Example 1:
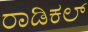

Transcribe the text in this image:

ರಾಡಿಕಲ್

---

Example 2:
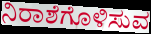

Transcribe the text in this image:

ನಿರಾಶೆಗೊಳಿಸುವ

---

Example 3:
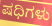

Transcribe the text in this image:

ಷಧಿಗಳು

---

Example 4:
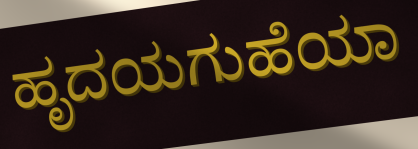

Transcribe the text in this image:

ಹೃದಯಗುಹೆಯಾ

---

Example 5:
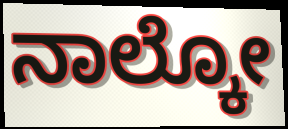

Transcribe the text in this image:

ನಾಲ್ಕೋ